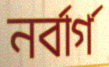
নর্বার্গ